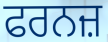
ਫਰਨਜ਼